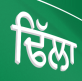
ਢਿੱਲਾ